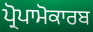
ਪ੍ਰੋਪਾਮੋਕਾਰਬ